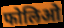
फोलिओ